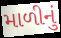
માળીનું